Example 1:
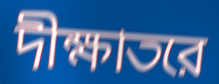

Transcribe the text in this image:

দীক্ষাতরে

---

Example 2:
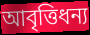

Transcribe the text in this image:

আবৃত্তিধন্য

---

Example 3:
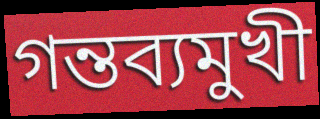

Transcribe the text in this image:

গন্তব্যমুখী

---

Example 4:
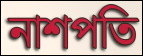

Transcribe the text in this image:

নাশপতি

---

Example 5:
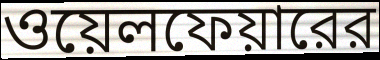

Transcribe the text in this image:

ওয়েলফেয়ারের